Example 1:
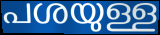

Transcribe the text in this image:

പശയുള്ള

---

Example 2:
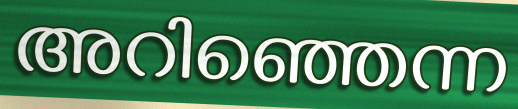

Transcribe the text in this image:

അറിഞ്ഞെന്ന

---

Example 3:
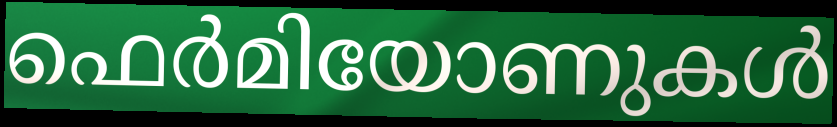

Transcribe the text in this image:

ഫെർമിയോണുകൾ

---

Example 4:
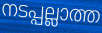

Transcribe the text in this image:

നടപ്പല്ലാത്ത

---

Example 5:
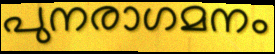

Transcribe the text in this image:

പുനരാഗമനം